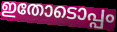
ഇതോടൊപ്പം